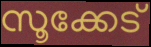
സൂക്കേട്